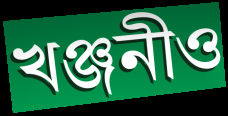
খঞ্জনীও